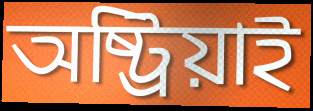
অষ্ট্ৰিয়াই